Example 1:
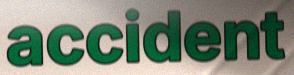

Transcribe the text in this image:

accident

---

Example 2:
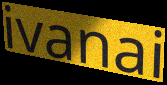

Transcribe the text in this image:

ivanai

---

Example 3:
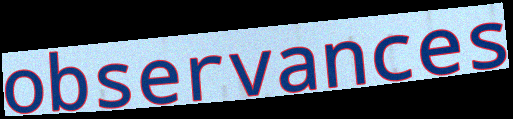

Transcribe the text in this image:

observances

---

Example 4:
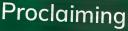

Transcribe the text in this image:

Proclaiming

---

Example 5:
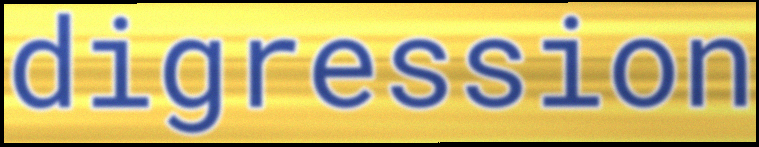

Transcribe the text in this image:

digression